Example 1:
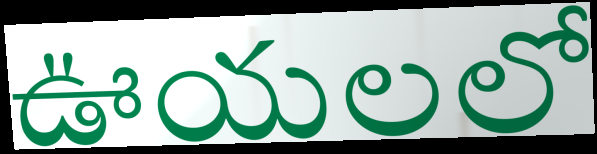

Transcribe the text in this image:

ఊయలలో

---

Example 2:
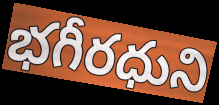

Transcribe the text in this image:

భగీరధుని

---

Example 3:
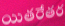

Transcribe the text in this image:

యితరేతర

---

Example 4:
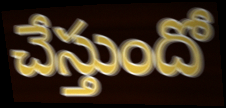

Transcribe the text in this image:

చేస్తుందో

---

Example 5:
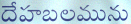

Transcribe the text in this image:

దేహబలమును